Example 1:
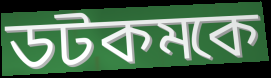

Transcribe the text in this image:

ডটকমকে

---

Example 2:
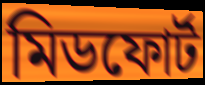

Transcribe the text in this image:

মিডফোর্ট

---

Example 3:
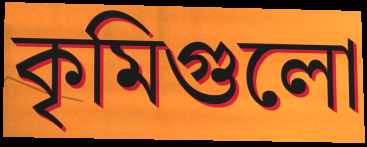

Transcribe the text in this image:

কৃমিগুলো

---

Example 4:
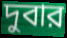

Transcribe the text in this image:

দুবার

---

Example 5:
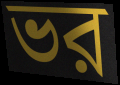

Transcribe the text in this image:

ভর